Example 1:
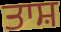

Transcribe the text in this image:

ਤਾਸ਼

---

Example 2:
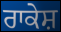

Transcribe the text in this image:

ਰਾਕੇਸ਼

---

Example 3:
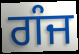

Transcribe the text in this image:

ਗੰਜ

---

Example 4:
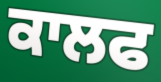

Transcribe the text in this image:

ਕਾਲਫ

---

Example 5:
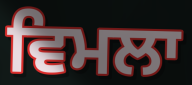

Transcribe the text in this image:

ਵਿਮਲਾ